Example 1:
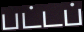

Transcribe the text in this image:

பட்டப்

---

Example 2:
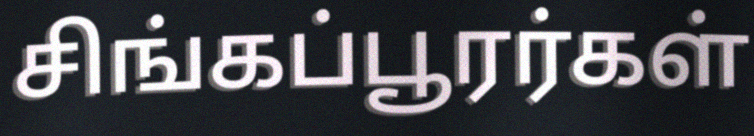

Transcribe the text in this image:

சிங்கப்பூரர்கள்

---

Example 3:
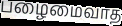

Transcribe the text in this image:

பழைமைவாத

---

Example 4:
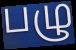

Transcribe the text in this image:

பழு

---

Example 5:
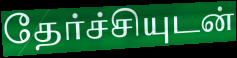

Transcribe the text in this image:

தேர்ச்சியுடன்